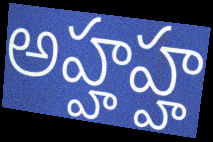
అహ్హహ్హ